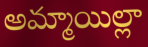
అమ్మాయిల్లా